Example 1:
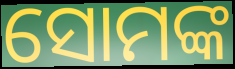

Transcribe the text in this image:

ସୋମଙ୍କ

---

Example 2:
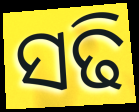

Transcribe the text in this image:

ସଢି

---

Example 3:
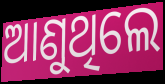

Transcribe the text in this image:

ଆଣୁଥିଲେ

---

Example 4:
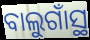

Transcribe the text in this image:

ବାଲୁଗାଁସ୍ଥ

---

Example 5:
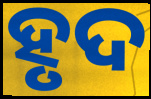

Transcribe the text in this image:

ହୃଦ